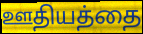
ஊதியத்தை